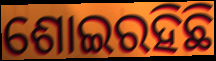
ଶୋଇରହିଛି